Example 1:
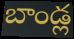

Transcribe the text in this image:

బాండ్ల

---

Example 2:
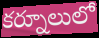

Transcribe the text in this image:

కర్నూలులో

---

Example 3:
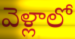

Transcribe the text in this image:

వెళ్లాలో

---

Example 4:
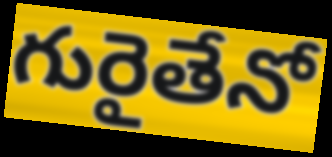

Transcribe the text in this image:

గురైతేనో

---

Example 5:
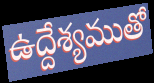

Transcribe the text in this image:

ఉద్దేశ్యముతో